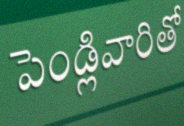
పెండ్లివారితో